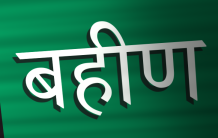
बहीण